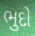
ભુદો